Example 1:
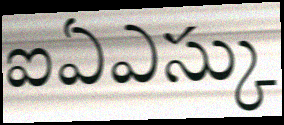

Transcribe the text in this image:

ఐఏఎస్కు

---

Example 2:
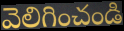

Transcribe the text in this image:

వెలిగించండి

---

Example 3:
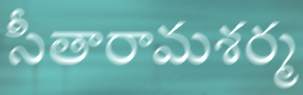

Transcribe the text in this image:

సీతారామశర్మ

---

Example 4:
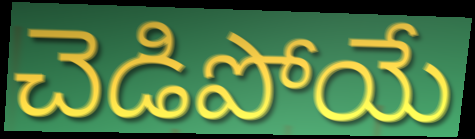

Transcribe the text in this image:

చెడిపోయే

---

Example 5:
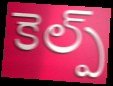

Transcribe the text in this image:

కెల్ప్